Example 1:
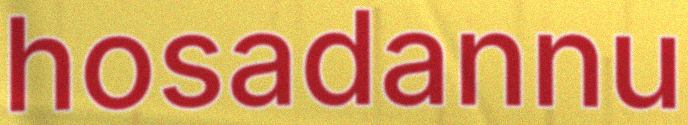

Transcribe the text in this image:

hosadannu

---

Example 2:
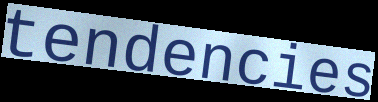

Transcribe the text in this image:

tendencies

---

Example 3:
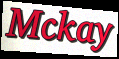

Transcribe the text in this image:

Mckay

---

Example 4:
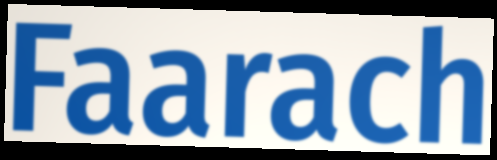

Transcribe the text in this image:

Faarach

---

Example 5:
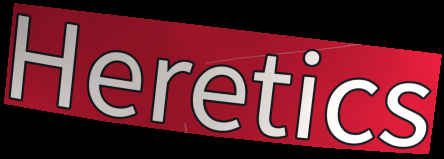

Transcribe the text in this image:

Heretics